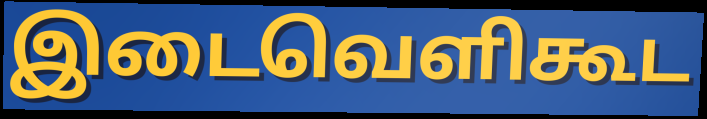
இடைவெளிகூட